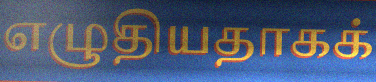
எழுதியதாகக்